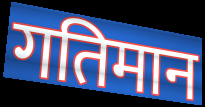
गतिमान